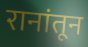
रानांतून